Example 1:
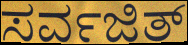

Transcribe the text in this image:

ಸರ್ವಜಿತ್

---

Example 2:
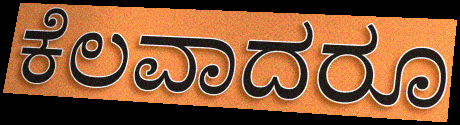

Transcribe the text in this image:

ಕೆಲವಾದರೂ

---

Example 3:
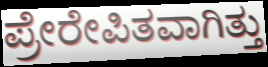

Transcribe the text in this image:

ಪ್ರೇರೇಪಿತವಾಗಿತ್ತು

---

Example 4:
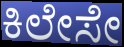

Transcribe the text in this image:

ಕಿಲೇಸೇ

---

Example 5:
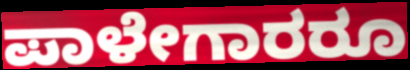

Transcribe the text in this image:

ಪಾಳೇಗಾರರೂ